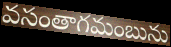
వసంతాగమంబును